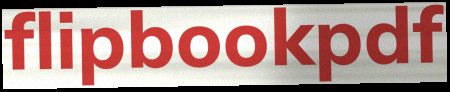
flipbookpdf